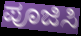
ಪೂಜಿಸಿ